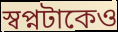
স্বপ্নটাকেও